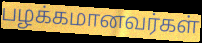
பழக்கமானவர்கள்